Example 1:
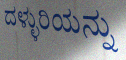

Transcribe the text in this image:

ದಳ್ಳುರಿಯನ್ನು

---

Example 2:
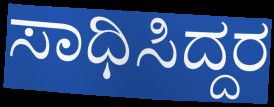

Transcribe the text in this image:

ಸಾಧಿಸಿದ್ದರ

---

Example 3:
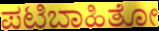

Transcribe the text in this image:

ಪಟಿಬಾಹಿತೋ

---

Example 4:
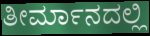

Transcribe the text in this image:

ತೀರ್ಮಾನದಲ್ಲಿ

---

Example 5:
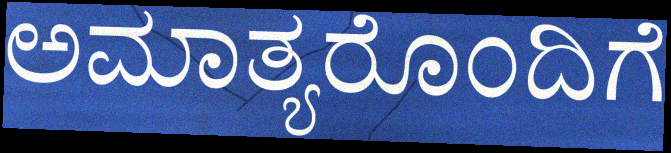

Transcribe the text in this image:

ಅಮಾತ್ಯರೊಂದಿಗೆ